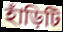
হাঁড়িটি